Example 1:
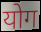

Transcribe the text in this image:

योग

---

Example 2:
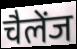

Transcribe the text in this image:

चैलेंज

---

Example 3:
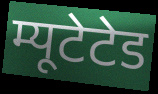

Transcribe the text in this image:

म्यूटेटेड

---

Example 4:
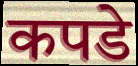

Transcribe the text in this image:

कपडे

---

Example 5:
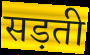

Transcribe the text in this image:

सड़ती